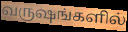
வருஷங்களில்